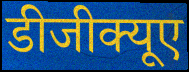
डीजीक्यूए